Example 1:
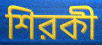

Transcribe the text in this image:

শিরকী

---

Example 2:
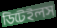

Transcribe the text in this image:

ডিটেইলস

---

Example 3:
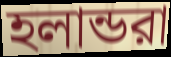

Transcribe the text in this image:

হলান্ডরা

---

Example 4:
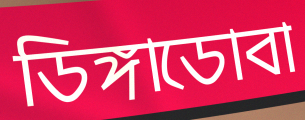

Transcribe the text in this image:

ডিঙ্গাডোবা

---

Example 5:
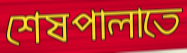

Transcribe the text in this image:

শেষপালাতে